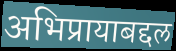
अभिप्रायाबद्दल